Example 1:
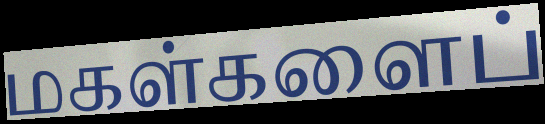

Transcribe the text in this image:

மகள்களைப்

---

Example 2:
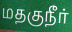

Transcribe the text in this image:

மதகுநீர்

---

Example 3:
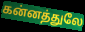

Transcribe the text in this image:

கன்னத்துலே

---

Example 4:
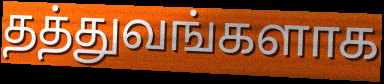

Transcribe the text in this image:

தத்துவங்களாக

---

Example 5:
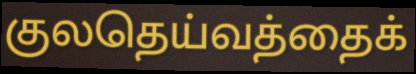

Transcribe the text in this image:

குலதெய்வத்தைக்